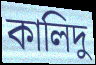
কালিদু